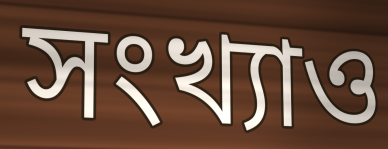
সংখ্যাও